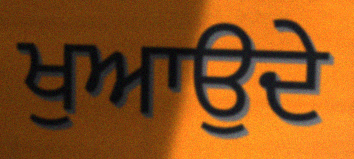
ਖੁਆਉਦੇ